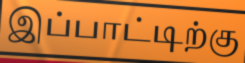
இப்பாட்டிற்கு